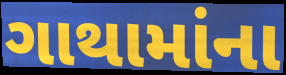
ગાથામાંના